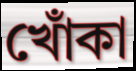
খোঁকা